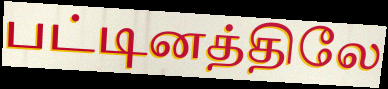
பட்டினத்திலே